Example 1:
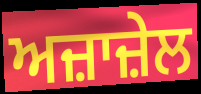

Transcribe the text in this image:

ਅਜ਼ਾਜ਼ੇਲ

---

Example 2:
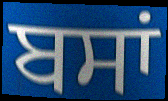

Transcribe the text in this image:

ਬਸਾਂ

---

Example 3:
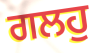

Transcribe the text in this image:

ਗਲਹੁ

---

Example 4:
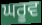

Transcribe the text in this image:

ਘਰੂਵ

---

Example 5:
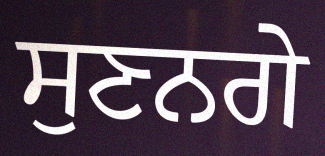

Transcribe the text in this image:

ਸੁਣਨਗੇ